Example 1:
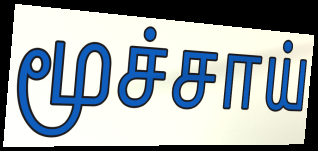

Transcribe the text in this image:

மூச்சாய்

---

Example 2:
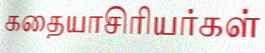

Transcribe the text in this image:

கதையாசிரியர்கள்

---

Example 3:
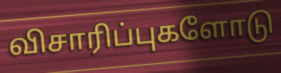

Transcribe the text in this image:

விசாரிப்புகளோடு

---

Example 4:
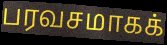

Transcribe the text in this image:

பரவசமாகக்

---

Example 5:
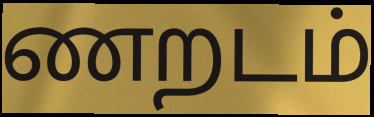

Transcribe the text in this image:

ணறடம்